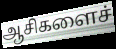
ஆசிகளைச்